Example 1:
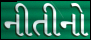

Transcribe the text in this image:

નીતીનો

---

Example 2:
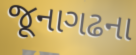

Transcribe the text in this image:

જૂનાગઢના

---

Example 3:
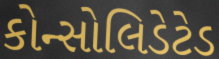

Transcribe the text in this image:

કોન્સોલિડેટેડ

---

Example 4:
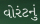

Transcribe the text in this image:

વોરંટનું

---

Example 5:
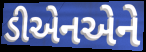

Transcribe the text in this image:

ડીએનએને